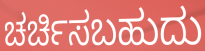
ಚರ್ಚಿಸಬಹುದು